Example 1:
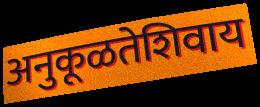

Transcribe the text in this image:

अनुकूळतेशिवाय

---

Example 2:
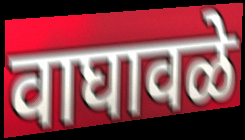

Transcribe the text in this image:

वाघावळे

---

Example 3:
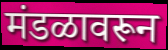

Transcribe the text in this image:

मंडळावरून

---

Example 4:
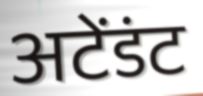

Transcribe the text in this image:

अटेंडंट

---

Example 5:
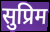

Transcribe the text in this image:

सुप्रिम